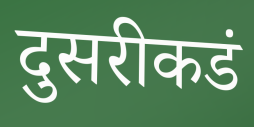
दुसरीकडं